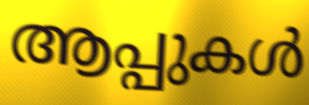
ആപ്പുകൾ